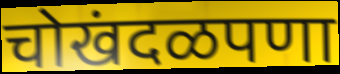
चोखंदळपणा